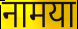
नामया